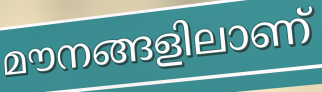
മൗനങ്ങളിലാണ്